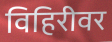
विहिरीवर